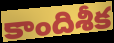
కాందిశీక